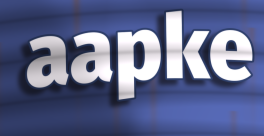
aapke